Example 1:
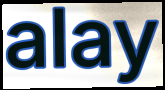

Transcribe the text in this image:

alay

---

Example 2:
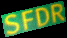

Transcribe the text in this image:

SFDR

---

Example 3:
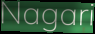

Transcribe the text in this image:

Nagari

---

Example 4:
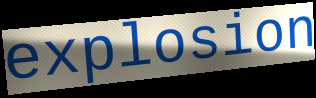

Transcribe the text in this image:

explosion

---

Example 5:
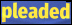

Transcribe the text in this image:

pleaded